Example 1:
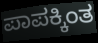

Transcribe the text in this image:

ಪಾಪಕ್ಕಿಂತ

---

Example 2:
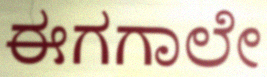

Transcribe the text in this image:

ಈಗಗಾಲೇ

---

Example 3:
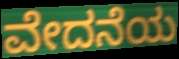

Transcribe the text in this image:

ವೇದನೆಯ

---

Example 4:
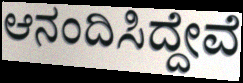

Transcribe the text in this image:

ಆನಂದಿಸಿದ್ದೇವೆ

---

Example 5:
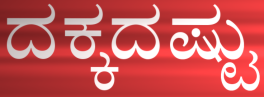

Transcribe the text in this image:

ದಕ್ಕದಷ್ಟು